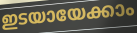
ഇടയായേക്കാം